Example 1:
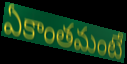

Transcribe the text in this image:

ఏకాంతమంటే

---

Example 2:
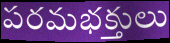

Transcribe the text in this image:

పరమభక్తులు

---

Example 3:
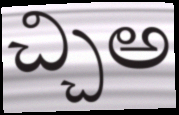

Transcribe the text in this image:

చ్చిఅ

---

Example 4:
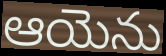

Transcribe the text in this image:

ఆయెను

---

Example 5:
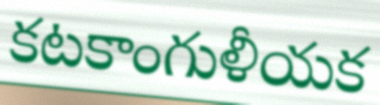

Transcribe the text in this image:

కటకాంగుళీయక